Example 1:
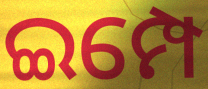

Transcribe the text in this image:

ଇମ୍ପେ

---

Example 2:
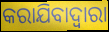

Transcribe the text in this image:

କରାଯିବାଦ୍ୱାରା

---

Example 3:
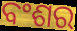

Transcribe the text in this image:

ବଂଶର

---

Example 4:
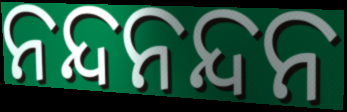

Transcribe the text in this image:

ନନ୍ଦନନ୍ଦନ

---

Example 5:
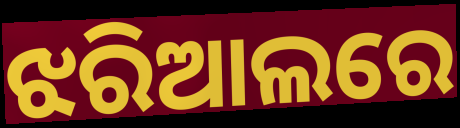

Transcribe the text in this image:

ଝରିଆଲରେ